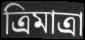
ত্রিমাত্রা